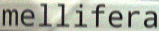
mellifera